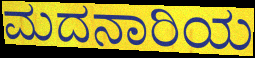
ಮದನಾರಿಯ